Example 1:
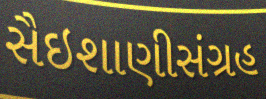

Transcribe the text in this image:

સૈઇશાણીસંગ્રહ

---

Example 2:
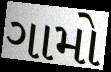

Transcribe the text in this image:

ગામો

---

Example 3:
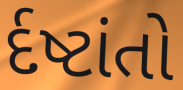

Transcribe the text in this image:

ર્દષ્ટાંતો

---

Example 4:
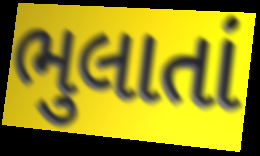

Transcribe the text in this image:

ભુલાતાં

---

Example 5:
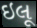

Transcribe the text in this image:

ઇલૂ